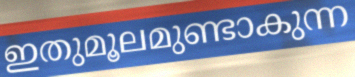
ഇതുമൂലമുണ്ടാകുന്ന